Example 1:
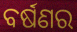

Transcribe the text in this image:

ବର୍ଷଣର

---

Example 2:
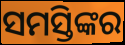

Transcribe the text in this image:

ସମସ୍ତିଙ୍କର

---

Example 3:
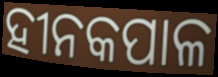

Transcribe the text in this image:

ହୀନକପାଳ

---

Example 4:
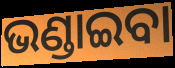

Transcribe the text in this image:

ଭଣ୍ଡାଇବା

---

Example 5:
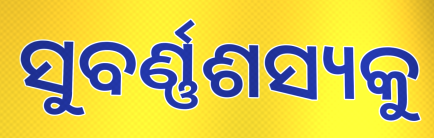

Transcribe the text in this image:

ସୁବର୍ଣ୍ଣଶସ୍ୟକୁ